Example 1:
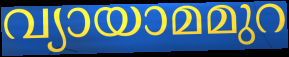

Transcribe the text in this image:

വ്യായാമമുറ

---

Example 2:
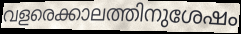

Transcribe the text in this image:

വളരെക്കാലത്തിനുശേഷം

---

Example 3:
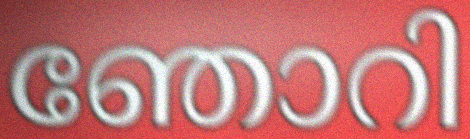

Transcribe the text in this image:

ഞോറി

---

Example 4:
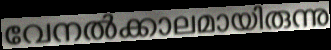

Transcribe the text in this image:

വേനൽക്കാലമായിരുന്നു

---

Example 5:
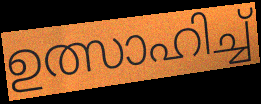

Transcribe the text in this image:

ഉത്സാഹിച്ച്